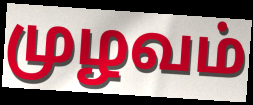
முழவம்